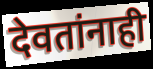
देवतांनाही